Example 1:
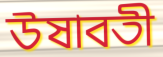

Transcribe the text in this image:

উষাবতী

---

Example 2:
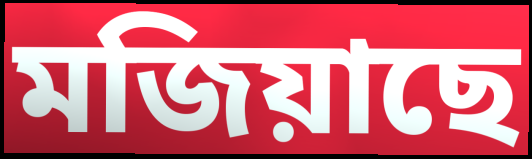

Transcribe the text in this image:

মজিয়াছে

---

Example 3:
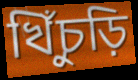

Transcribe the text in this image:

খিঁচুড়ি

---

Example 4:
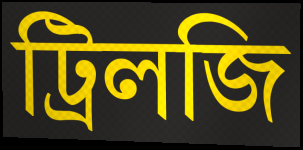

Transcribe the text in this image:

ট্রিলজি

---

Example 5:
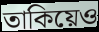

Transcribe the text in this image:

তাকিয়েও